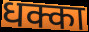
धक्का